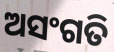
ଅସଂଗତି